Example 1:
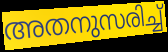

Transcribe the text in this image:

അതനുസരിച്ച്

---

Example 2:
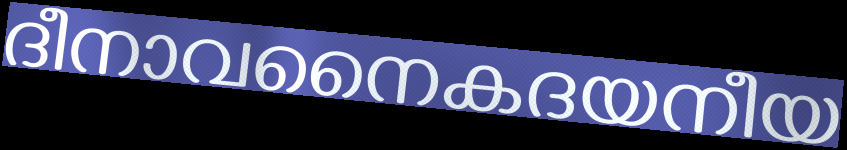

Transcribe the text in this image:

ദീനാവനൈകദയനീയ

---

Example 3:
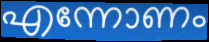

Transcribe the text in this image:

എന്നോണം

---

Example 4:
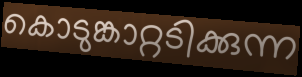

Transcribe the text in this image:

കൊടുങ്കാറ്റടിക്കുന്ന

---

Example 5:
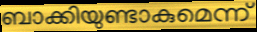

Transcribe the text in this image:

ബാക്കിയുണ്ടാകുമെന്ന്